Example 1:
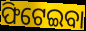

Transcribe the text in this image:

ଫିଟେଇବା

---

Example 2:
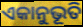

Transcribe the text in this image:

ଏକାନୁଭୂତି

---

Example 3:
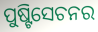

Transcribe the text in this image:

ପୁଷ୍ଟିସେଚନର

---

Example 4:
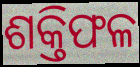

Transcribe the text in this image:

ଶକ୍ତିଫଳ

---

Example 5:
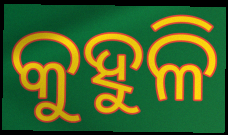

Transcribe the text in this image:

କୁହୁଳି